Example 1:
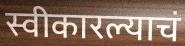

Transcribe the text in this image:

स्वीकारल्याचं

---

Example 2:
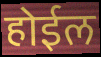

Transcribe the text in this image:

होईल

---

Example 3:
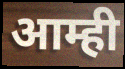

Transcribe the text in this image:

आम्ही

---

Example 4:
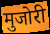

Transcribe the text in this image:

मुजोरी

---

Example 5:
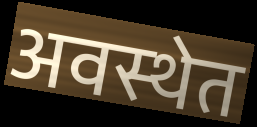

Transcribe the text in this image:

अवस्थेत